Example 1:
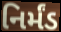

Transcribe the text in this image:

નિર્મંડ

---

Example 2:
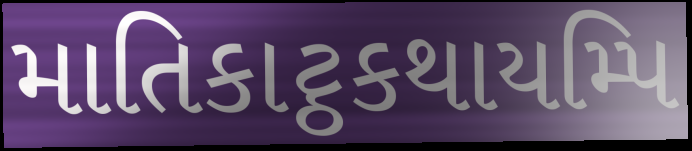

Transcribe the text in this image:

માતિકાટ્ઠકથાયમ્પિ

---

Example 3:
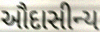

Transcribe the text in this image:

ઔદાસીન્ય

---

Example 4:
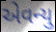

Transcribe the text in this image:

એવન્યુ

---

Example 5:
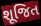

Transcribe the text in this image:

શૂજિત